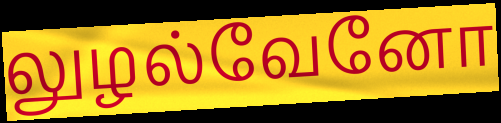
லுழல்வேனோ